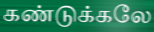
கண்டுக்கலே